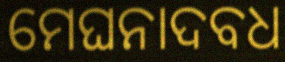
ମେଘନାଦବଧ